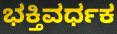
ಭಕ್ತಿವರ್ಧಕ